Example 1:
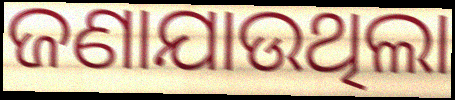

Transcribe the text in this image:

ଜଣାଯାଉଥିଲା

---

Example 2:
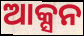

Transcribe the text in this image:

ଆକ୍ସନ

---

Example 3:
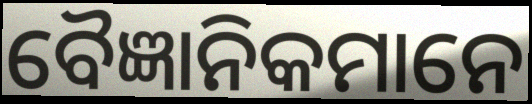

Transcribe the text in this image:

ବୈଜ୍ଞାନିକମାନେ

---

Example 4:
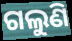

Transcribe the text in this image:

ଗଲୁଣି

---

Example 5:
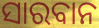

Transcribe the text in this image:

ସାରବାନ